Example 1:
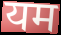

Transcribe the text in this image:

यम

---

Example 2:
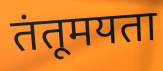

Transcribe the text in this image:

तंतूमयता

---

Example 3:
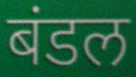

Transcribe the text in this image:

बंडल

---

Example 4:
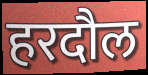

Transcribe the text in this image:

हरदौल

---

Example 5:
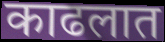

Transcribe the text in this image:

काढलात